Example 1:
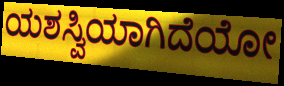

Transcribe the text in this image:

ಯಶಸ್ವಿಯಾಗಿದೆಯೋ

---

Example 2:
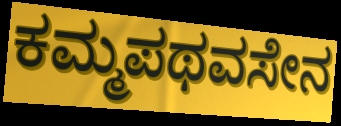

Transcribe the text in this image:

ಕಮ್ಮಪಥವಸೇನ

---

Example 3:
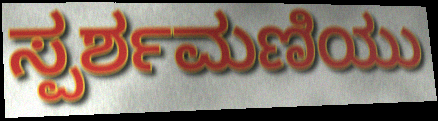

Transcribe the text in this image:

ಸ್ಪರ್ಶಮಣಿಯು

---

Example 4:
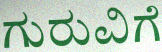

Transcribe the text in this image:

ಗುರುವಿಗೆ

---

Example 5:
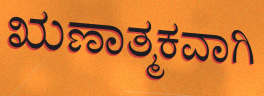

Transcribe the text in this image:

ಋಣಾತ್ಮಕವಾಗಿ